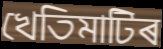
খেতিমাটিৰ